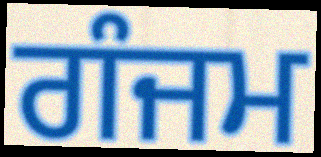
ਗੰਜਮ